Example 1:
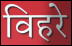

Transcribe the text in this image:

विहरे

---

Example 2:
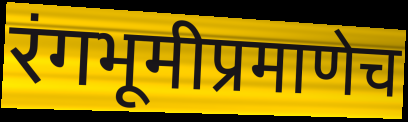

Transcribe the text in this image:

रंगभूमीप्रमाणेच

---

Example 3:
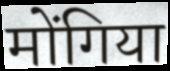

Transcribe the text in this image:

मोंगिया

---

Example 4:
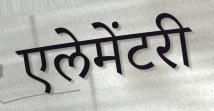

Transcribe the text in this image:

एलेमेंटरी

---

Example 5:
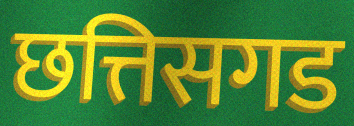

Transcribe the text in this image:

छत्तिसगड